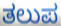
ತಲುಪ